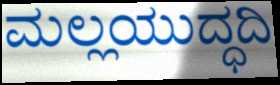
ಮಲ್ಲಯುದ್ಧದಿ